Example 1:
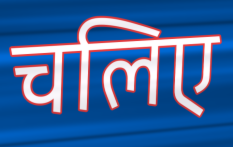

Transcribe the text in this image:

चलिए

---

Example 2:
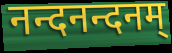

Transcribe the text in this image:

नन्दनन्दनम्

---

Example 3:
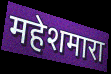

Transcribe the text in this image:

महेशमारा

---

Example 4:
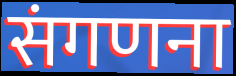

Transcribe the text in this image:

संगणना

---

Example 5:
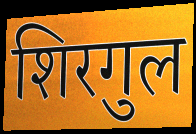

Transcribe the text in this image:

शिरगुल